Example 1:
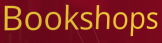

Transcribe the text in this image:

Bookshops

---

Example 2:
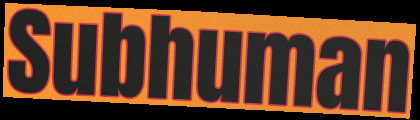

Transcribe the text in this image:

Subhuman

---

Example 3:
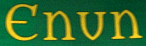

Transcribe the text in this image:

Enun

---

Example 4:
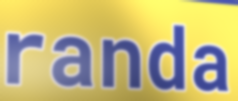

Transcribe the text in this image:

randa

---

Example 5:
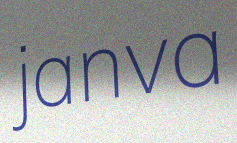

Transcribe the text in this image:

janva